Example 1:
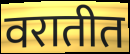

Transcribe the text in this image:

वरातीत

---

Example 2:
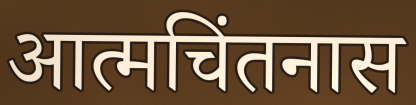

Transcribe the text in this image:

आत्मचिंतनास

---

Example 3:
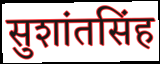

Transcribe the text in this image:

सुशांतसिंह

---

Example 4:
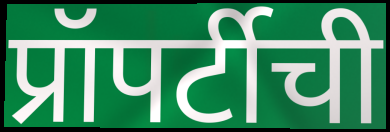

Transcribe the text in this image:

प्रॉपर्टीची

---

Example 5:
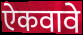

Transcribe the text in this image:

ऐकवावे